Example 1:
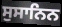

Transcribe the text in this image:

ਸੁਸਾਨਿਨ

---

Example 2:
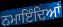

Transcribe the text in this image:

ਨਮਾਇੰਦਿਆਂ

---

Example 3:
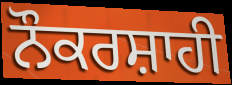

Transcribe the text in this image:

ਨੌਕਰਸ਼ਾਹੀ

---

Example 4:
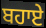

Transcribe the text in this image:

ਬਹਾਏ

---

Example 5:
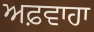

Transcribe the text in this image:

ਅਫ਼ਵਾਹਾ